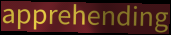
apprehending